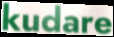
kudare